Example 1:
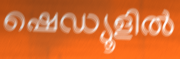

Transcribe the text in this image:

ഷെഡ്യൂളിൽ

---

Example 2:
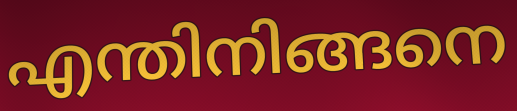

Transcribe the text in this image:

എന്തിനിങ്ങനെ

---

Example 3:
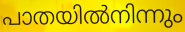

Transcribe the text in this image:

പാതയിൽനിന്നും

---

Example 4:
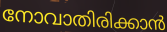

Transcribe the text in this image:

നോവാതിരിക്കാൻ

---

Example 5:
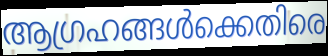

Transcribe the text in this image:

ആഗ്രഹങ്ങൾക്കെതിരെ